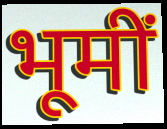
भूमीं